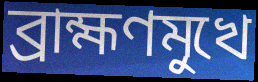
ব্রাহ্মণমুখে